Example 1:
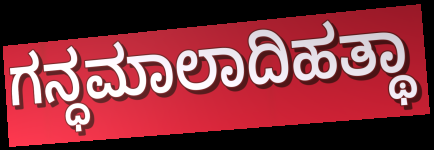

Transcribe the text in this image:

ಗನ್ಧಮಾಲಾದಿಹತ್ಥಾ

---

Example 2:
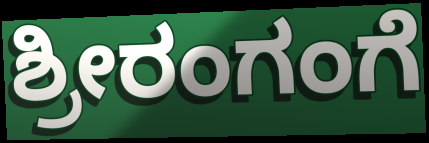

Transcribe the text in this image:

ಶ್ರೀರಂಗಂಗೆ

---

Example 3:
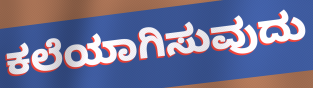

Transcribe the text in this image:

ಕಲೆಯಾಗಿಸುವುದು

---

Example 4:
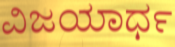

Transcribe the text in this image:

ವಿಜಯಾರ್ಧ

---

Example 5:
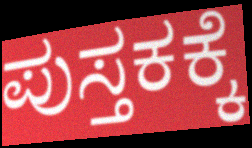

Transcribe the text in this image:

ಪುಸ್ತಕಕ್ಕೆ